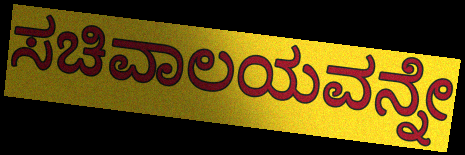
ಸಚಿವಾಲಯವನ್ನೇ